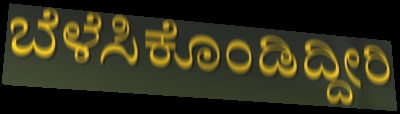
ಬೆಳೆಸಿಕೊಂಡಿದ್ದೀರಿ